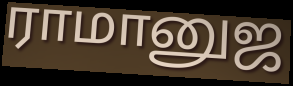
ராமானுஜ